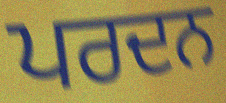
ਪਰਦਨ